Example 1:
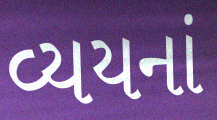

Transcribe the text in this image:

વ્યયનાં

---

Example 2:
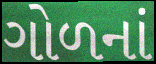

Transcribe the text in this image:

ગોળનાં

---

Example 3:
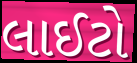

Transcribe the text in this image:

લાઈટો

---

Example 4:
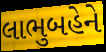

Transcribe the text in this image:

લાભુબહેને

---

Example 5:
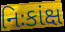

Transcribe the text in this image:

નિઃકાંક્ષ